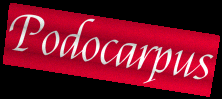
Podocarpus